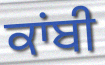
ਕਾਂਬੀ